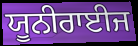
ਯੂਨੀਰਾਈਜ